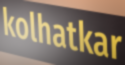
kolhatkar